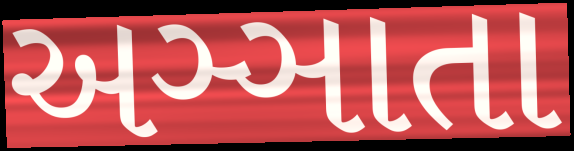
અઞ્ઞાતા